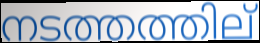
നടത്തത്തില്